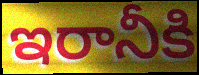
ఇరానీకి